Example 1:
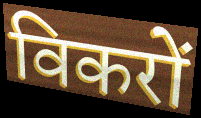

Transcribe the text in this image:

विकरों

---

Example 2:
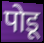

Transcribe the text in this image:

पोडू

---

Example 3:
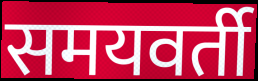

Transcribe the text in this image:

समयवर्ती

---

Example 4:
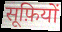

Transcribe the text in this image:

सूफ़ियों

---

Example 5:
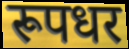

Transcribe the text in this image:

रूपधर